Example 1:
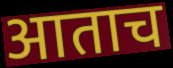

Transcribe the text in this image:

आताच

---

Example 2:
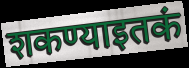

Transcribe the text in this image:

शकण्याइतकं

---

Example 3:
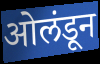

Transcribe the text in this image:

ओलंडून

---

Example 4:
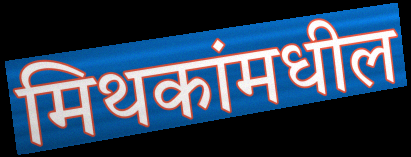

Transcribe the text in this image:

मिथकांमधील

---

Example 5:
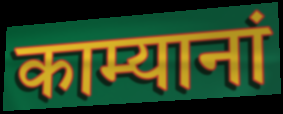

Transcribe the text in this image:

काम्यानां